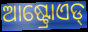
ଆଷ୍ଟ୍ରୋଏଡ୍